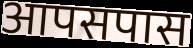
आपसपास